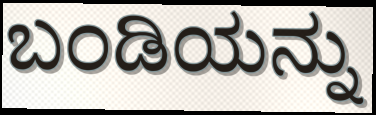
ಬಂಡಿಯನ್ನು